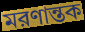
মরণান্তক